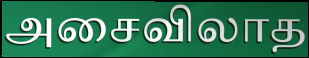
அசைவிலாத